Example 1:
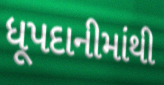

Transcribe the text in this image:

ધૂપદાનીમાંથી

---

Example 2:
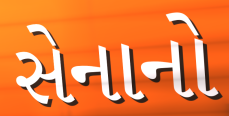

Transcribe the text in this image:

સેનાનો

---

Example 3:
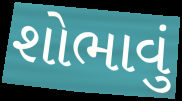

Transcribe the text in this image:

શોભાવું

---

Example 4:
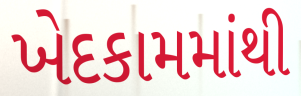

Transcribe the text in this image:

ખેદકામમાંથી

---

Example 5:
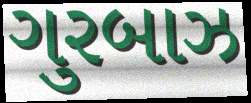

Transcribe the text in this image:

ગુરબાઝ